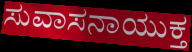
ಸುವಾಸನಾಯುಕ್ತ